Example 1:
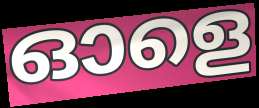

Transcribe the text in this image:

ഓളെ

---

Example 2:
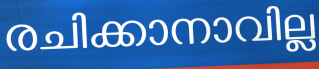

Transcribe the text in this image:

രചിക്കാനാവില്ല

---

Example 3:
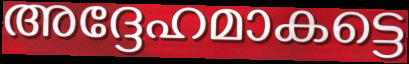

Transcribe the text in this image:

അദ്ദേഹമാകട്ടെ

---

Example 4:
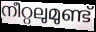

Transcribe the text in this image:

നീറ്റലുമുണ്ട്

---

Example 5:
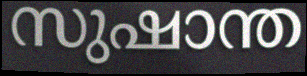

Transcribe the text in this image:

സുഷാന്ത